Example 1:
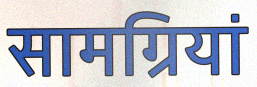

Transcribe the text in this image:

सामग्रियां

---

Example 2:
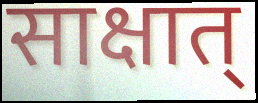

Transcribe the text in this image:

साक्षात्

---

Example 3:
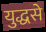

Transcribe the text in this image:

युद्धसे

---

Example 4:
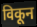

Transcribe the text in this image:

विकून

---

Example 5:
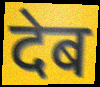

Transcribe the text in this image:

देब